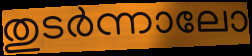
തുടർന്നാലോ